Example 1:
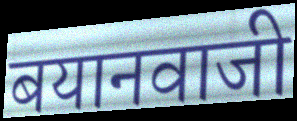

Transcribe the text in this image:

बयानवाजी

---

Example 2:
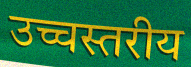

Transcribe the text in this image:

उच्चस्तरीय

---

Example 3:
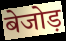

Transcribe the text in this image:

बेजोड़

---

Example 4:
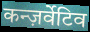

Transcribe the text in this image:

कन्ज़र्वेटिव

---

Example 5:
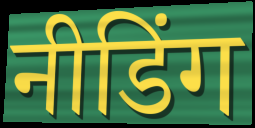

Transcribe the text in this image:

नीडिंग